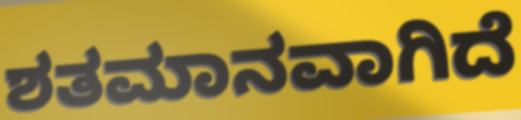
ಶತಮಾನವಾಗಿದೆ